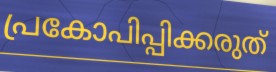
പ്രകോപിപ്പിക്കരുത്